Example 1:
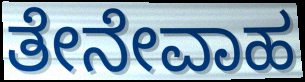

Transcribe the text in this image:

ತೇನೇವಾಹ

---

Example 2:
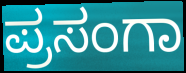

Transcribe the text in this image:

ಪ್ರಸಂಗಾ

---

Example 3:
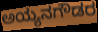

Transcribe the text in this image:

ಅಯ್ಯನಗೌಡರ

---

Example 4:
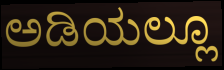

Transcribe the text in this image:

ಅಡಿಯಲ್ಲೂ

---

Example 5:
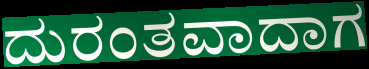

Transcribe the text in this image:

ದುರಂತವಾದಾಗ